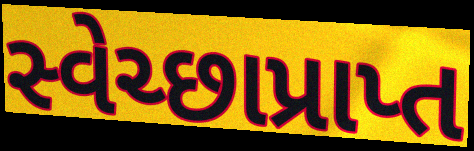
સ્વેચ્છાપ્રાપ્ત